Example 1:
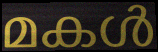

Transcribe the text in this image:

മകൾ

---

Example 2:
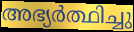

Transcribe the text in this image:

അഭ്യർത്ഥിച്ചു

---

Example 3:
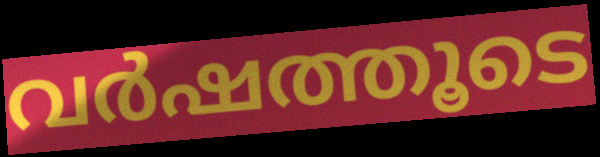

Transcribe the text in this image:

വർഷത്തൂടെ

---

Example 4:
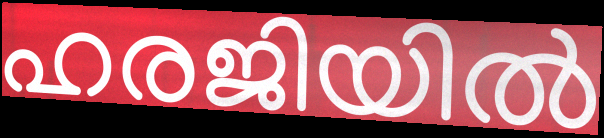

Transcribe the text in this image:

ഹരജിയിൽ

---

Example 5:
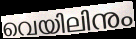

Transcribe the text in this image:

വെയിലിനും